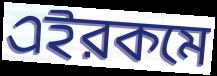
এইরকমে